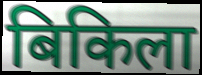
बिकिला